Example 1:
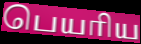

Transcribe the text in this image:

பெயரிய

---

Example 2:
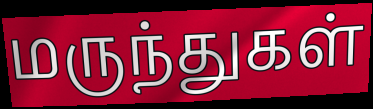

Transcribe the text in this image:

மருந்துகள்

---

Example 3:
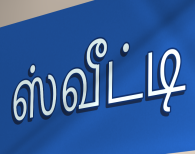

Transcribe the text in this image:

ஸ்வீட்டி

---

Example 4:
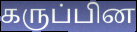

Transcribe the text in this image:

கருப்பின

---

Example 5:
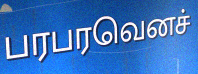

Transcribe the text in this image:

பரபரவெனச்